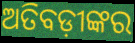
ଅତିବଡ଼ୀଙ୍କର